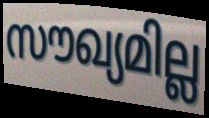
സൗഖ്യമില്ല